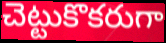
చెట్టుకొకరుగా